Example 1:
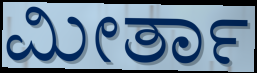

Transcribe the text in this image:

ಮೀರ್ತಾ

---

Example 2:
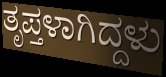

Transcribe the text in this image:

ತೃಪ್ತಳಾಗಿದ್ದಳು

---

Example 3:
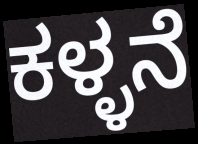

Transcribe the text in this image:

ಕಳ್ಳನೆ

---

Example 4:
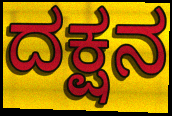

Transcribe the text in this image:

ದಕ್ಷನ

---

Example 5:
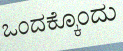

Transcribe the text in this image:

ಒಂದಕ್ಕೊಂದು